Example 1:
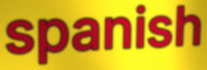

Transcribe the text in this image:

spanish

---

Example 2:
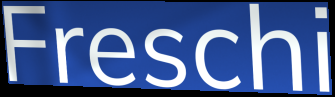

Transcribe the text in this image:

Freschi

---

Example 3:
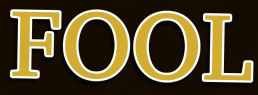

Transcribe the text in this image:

FOOL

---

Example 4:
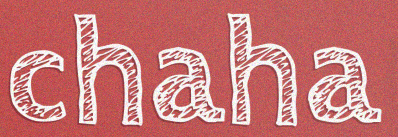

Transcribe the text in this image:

chaha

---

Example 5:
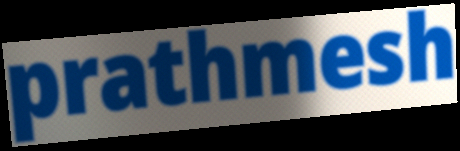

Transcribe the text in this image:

prathmesh